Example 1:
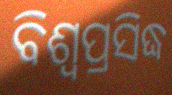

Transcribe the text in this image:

ବିଶ୍ଵପ୍ରସିଦ୍ଧ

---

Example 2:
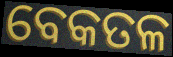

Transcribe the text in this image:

ବେକତଳ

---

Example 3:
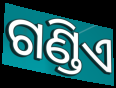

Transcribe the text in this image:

ଗଣ୍ଡିଏ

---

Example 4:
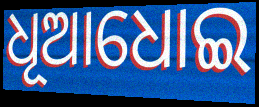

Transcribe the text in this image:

ଧୂଆଧୋଇ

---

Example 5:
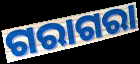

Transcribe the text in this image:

ଗରାଗରା